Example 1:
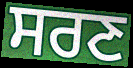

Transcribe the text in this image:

ਸਰਣ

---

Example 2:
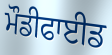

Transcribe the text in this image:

ਮੌਡੀਫਾਈਡ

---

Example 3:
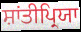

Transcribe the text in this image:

ਸ਼ਾਂਤੀਪ੍ਰਿਯਾ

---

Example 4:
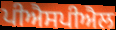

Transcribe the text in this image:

ਪੀਐਸਪੀਐਲ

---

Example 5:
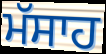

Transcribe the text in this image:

ਮੱਸਾਹ